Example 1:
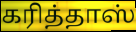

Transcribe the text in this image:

கரித்தாஸ்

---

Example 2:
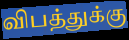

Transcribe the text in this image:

விபத்துக்கு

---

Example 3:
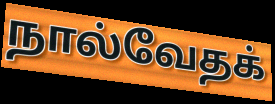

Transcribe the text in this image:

நால்வேதக்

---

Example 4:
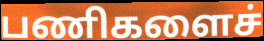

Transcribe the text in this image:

பணிகளைச்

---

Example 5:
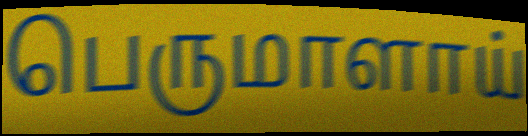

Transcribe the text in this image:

பெருமாளாய்